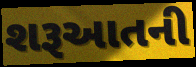
શરૂઆતની